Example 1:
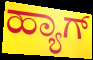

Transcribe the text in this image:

ಹ್ಯಾಗ್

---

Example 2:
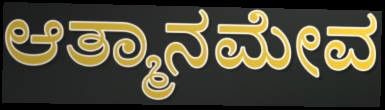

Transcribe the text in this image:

ಆತ್ಮಾನಮೇವ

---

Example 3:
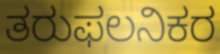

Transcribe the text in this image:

ತರುಫಲನಿಕರ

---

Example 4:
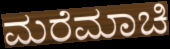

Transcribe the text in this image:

ಮರೆಮಾಚಿ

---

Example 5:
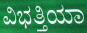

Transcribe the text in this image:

ವಿಭತ್ತಿಯಾ